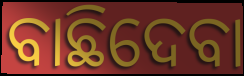
ବାଛିଦେବା